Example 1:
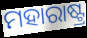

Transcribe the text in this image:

ମହାରାଷ୍ଟ୍ର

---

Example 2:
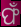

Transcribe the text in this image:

ଫଁ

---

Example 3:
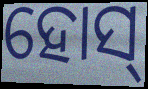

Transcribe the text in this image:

ହୋସ୍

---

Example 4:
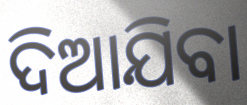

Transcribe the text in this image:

ଦିଆଯିବା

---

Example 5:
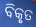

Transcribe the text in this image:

ବିକୃତ